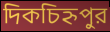
দিকচিহ্নপুর